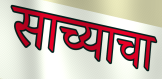
साच्याचा